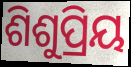
ଶିଶୁପ୍ରିୟ